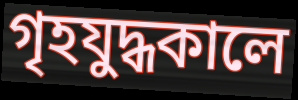
গৃহযুদ্ধকালে